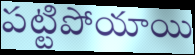
పట్టిపోయాయి